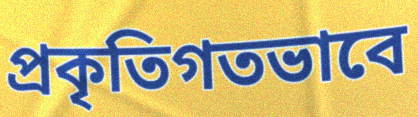
প্রকৃতিগতভাবে